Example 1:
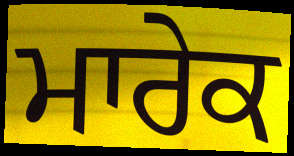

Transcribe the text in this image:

ਮਾਰੇਕ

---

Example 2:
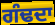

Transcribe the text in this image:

ਗੰਢਦਾ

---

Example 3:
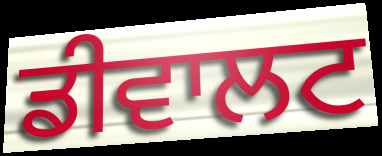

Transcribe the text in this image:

ਡੀਵਾਲਟ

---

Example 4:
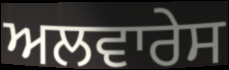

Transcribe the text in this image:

ਅਲਵਾਰੇਸ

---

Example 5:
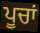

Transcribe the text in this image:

ਪੂਚਾਂ